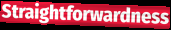
Straightforwardness